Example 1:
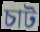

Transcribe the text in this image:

চাট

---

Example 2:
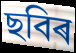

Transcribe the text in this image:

ছবিৰ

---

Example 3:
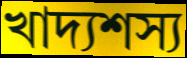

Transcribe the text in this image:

খাদ্যশস্য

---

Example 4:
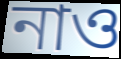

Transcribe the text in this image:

নাও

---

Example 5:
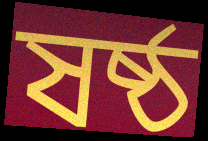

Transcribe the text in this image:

ষষ্ঠ